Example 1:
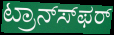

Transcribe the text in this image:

ಟ್ರಾನ್ಸ್‍ಫರ್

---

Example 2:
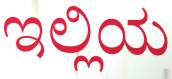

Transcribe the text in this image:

ಇಲ್ಲಿಯ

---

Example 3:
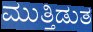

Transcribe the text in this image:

ಮುತ್ತಿಡುತ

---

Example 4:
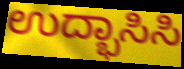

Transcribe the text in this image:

ಉದ್ಭಾಸಿಸಿ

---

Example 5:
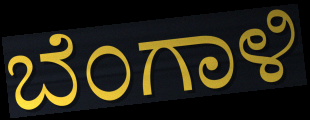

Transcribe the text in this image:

ಬೆಂಗಾಳಿ